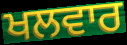
ਖਲਵਾਰ